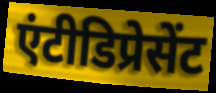
एंटीडिप्रेसेंट